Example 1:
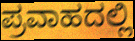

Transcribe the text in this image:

ಪ್ರವಾಹದಲ್ಲಿ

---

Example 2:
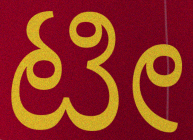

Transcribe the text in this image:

ಟೀ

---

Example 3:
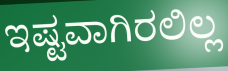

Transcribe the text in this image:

ಇಷ್ಟವಾಗಿರಲಿಲ್ಲ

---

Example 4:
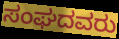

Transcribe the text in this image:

ಸಂಘದವರು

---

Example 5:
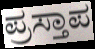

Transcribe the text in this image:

ಪ್ರಸ್ತಾಪ